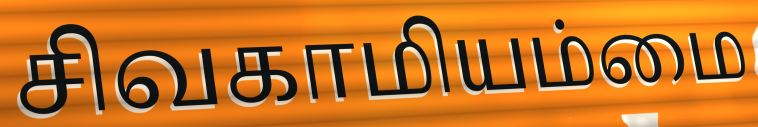
சிவகாமியம்மை